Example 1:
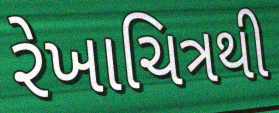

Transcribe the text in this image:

રેખાચિત્રથી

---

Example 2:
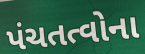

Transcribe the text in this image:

પંચતત્વોના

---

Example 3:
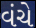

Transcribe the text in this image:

વંચે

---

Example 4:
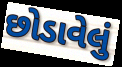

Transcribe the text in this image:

છોડાવેલું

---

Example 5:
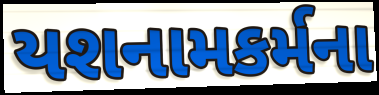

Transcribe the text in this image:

યશનામકર્મના